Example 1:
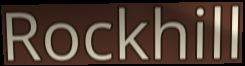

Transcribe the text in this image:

Rockhill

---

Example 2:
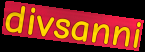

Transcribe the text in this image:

divsanni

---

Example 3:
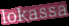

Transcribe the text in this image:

lokassa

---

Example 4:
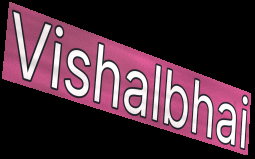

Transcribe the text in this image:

Vishalbhai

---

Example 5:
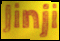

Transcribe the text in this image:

Jinji